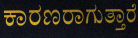
ಕಾರಣರಾಗುತ್ತಾರೆ